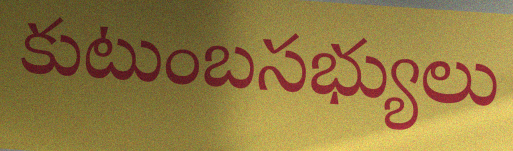
కుటుంబసభ్యులు